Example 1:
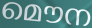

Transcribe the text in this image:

മൌന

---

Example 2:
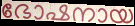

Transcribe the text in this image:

ഭോഷനായ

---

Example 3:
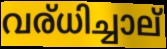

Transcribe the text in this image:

വര്ധിച്ചാല്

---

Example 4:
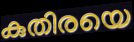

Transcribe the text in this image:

കുതിരയെ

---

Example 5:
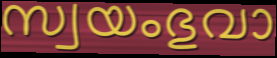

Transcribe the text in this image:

സ്വയംഭുവാ